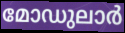
മോഡുലാർ